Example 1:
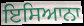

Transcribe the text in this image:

ਇਸਿਆਨਾ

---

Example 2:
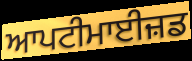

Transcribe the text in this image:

ਆਪਟੀਮਾਈਜ਼ਡ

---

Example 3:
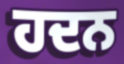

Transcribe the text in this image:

ਹਦਨ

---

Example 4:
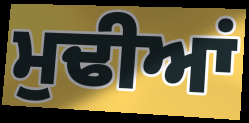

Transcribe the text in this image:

ਮੁਢੀਆਂ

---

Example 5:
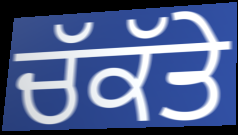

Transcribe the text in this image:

ਚੱਕੱਤੇ